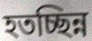
হতচ্ছিন্ন